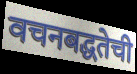
वचनबद्धतेची